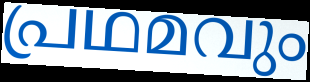
പ്രഥമവും